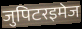
जुपिटरइमेज